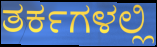
ತರ್ಕಗಳಲ್ಲಿ